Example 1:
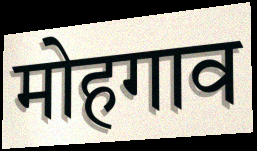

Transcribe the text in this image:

मोहगाव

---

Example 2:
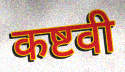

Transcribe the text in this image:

कष्टवी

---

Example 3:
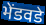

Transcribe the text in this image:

भेंडवडे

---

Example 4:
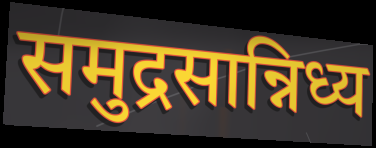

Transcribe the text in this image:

समुद्रसान्निध्य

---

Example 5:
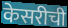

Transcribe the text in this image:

केसरीची